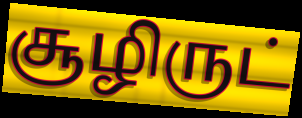
சூழிருட்